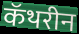
कॅथरीन